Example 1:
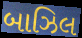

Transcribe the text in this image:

બાઝિલ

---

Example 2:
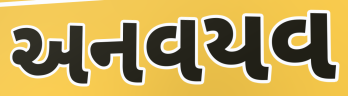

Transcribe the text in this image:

અનવયવ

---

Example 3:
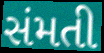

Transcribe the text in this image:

સંમતી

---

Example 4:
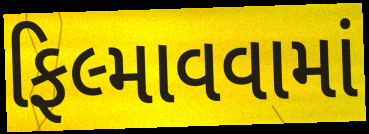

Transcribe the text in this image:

ફિલ્માવવામાં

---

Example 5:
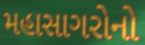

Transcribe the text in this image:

મહાસાગરોનો